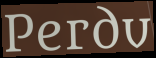
Perdu